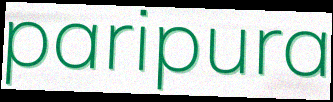
paripura